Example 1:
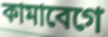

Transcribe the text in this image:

কামাবেগে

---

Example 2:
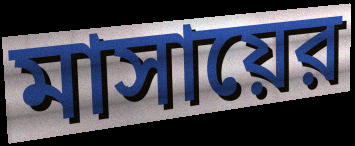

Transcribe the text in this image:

মাসায়ের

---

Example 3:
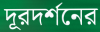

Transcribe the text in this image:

দূরদর্শনের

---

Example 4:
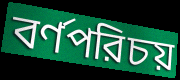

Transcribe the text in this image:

বর্ণপরিচয়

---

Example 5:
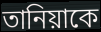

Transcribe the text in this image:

তানিয়াকে